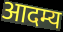
आदम्य